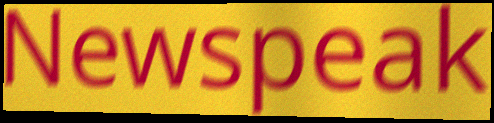
Newspeak